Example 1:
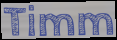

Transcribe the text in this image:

Timm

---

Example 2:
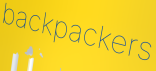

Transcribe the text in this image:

backpackers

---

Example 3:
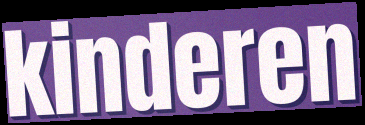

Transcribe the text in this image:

kinderen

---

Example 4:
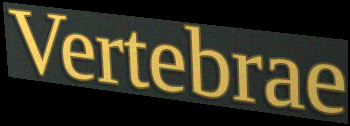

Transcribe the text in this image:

Vertebrae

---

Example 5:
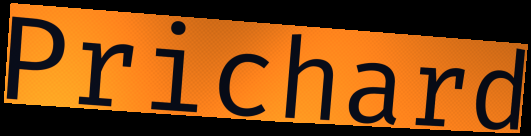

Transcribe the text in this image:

Prichard